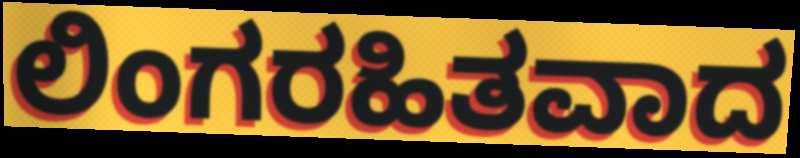
ಲಿಂಗರಹಿತವಾದ